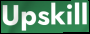
Upskill